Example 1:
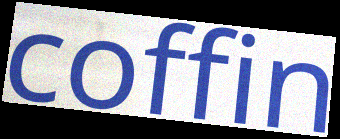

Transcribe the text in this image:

coffin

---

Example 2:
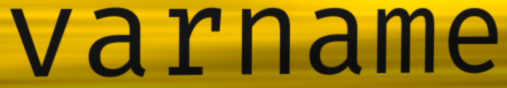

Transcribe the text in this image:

varname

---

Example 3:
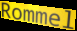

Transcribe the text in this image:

Rommel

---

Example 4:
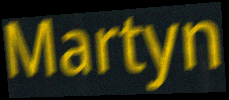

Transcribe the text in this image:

Martyn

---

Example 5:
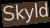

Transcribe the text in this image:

Skyld